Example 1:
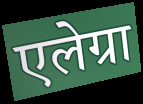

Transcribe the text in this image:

एलेग्रा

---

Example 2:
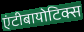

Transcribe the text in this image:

एंटीबायोटिक्स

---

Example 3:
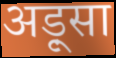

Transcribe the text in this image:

अड़ूसा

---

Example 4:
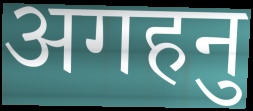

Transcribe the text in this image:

अगहनु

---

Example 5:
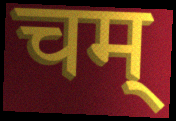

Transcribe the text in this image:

चम्